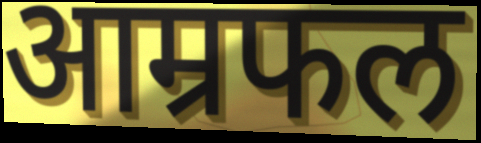
आम्रफल